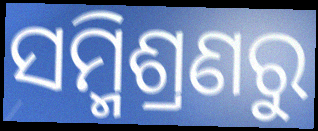
ସମ୍ମିଶ୍ରଣରୁ